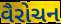
વૈરોચન